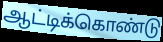
ஆட்டிக்கொண்டு